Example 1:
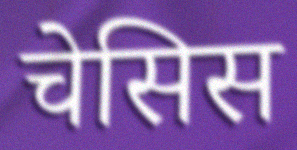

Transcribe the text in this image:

चेसिस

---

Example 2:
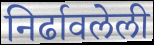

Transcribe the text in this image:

निर्ढावलेली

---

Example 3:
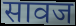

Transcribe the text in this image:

सावज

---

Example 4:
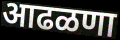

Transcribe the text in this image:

आढळणा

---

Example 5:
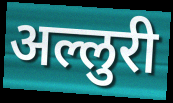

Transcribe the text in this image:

अल्लुरी